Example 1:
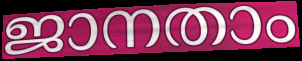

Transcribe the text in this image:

ജാനതാം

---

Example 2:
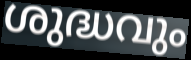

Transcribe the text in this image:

ശുദ്ധവും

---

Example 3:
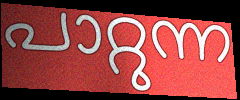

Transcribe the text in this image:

പാറ്റുന്ന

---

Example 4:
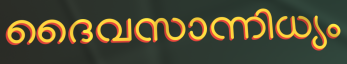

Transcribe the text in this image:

ദൈവസാന്നിധ്യം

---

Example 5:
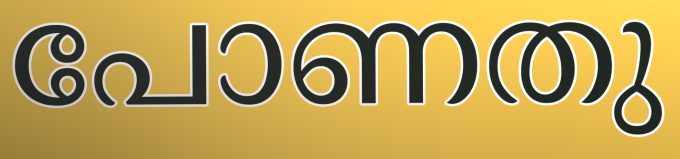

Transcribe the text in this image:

പോണതു